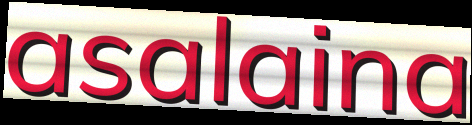
asalaina